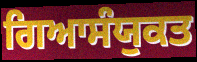
ਗਿਆਸੰਯੁਕਤ